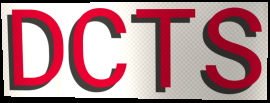
DCTS